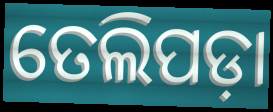
ତେଲିପଡ଼ା